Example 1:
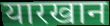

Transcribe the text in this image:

यारखान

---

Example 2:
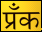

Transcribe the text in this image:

प्रँक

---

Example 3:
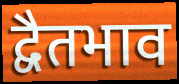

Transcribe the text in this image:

द्वैतभाव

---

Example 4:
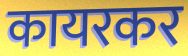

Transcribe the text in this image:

कायरकर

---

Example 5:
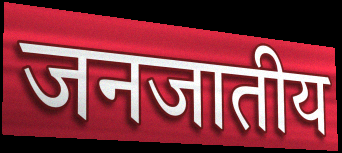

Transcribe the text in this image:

जनजातीय